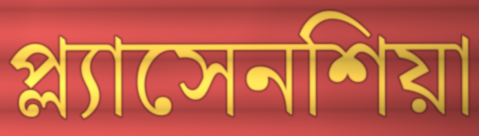
প্ল্যাসেনশিয়া